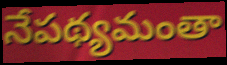
నేపథ్యమంతా